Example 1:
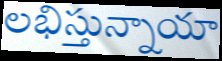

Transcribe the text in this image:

లభిస్తున్నాయా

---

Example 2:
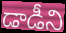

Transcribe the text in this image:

డాడీని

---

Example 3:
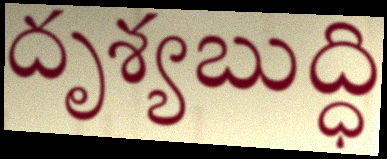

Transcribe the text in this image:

దృశ్యబుద్ధి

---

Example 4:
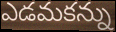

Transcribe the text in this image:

ఎడమకన్ను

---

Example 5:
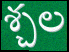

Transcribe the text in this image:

శ్చల